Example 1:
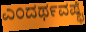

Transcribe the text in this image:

ಎಂದರ್ಥವಷ್ಟೆ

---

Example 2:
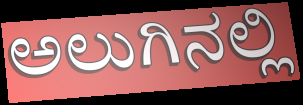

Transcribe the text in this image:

ಅಲುಗಿನಲ್ಲಿ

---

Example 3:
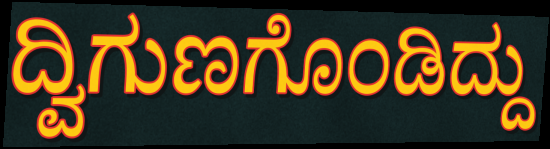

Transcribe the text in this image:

ದ್ವಿಗುಣಗೊಂಡಿದ್ದು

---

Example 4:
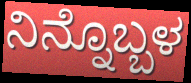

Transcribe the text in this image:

ನಿನ್ನೊಬ್ಬಳ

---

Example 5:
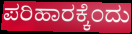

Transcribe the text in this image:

ಪರಿಹಾರಕ್ಕೆಂದು